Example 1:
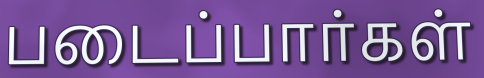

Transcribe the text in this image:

படைப்பார்கள்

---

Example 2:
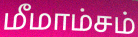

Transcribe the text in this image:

மீமாம்சம்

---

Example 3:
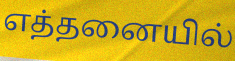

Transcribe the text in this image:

எத்தனையில்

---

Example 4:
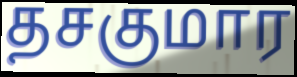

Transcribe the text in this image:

தசகுமார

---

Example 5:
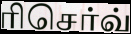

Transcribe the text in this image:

ரிசெர்வ்